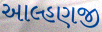
આલ્હણજી